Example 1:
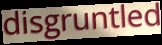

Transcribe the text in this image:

disgruntled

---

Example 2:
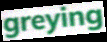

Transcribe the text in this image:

greying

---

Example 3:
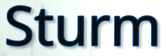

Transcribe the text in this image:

Sturm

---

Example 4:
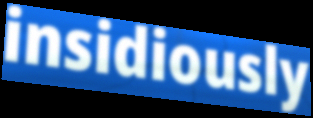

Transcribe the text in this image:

insidiously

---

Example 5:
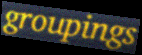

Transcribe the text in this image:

groupings